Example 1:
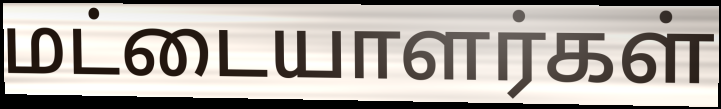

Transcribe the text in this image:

மட்டையாளர்கள்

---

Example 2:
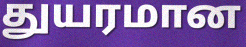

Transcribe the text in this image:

துயரமான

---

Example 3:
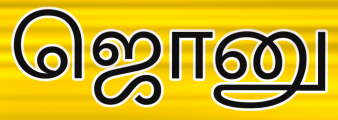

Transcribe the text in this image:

ஜொனு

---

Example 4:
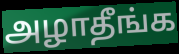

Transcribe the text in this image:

அழாதீங்க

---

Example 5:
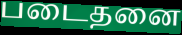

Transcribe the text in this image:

படைதனை